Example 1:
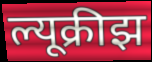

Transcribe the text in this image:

ल्यूक्रीझ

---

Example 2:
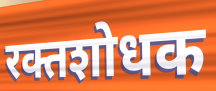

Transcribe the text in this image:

रक्तशोधक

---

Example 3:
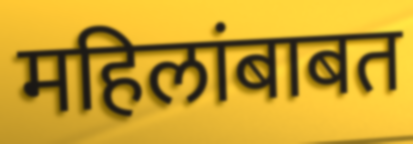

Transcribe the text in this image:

महिलांबाबत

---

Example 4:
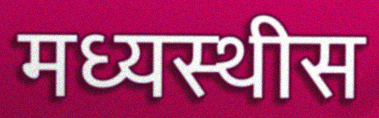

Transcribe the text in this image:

मध्यस्थीस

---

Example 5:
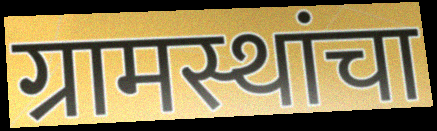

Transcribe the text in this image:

ग्रामस्थांचा